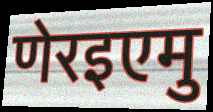
णेरइएमु